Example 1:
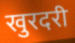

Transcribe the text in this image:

खुरदरी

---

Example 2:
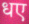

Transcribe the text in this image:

धए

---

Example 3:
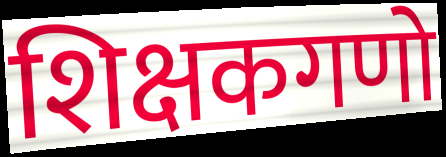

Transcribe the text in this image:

शिक्षकगणो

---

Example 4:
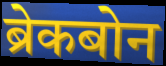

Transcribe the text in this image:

ब्रेकबोन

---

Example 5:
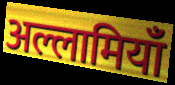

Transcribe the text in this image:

अल्लामियाँ